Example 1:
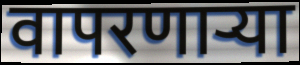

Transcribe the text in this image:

वापरणार्‍या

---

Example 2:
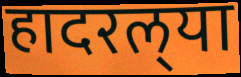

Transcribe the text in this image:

हादरल्या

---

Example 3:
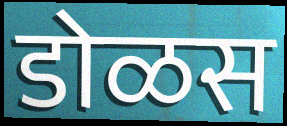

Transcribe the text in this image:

डोळस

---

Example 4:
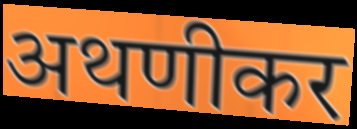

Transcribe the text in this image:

अथणीकर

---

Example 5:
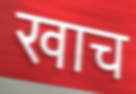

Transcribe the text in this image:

खाच